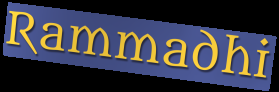
Rammadhi